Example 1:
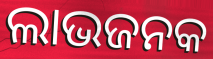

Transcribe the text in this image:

ଲାଭଜନକ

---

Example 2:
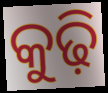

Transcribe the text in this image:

କୁଢ଼ି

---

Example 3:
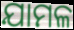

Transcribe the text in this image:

ଯାମଳ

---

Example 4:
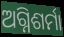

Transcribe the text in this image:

ଅଗ୍ନିଶର୍ମା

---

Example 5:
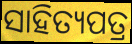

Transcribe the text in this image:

ସାହିତ୍ୟପତ୍ର